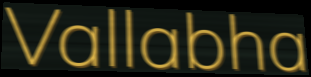
Vallabha